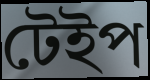
টেইপ